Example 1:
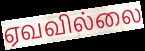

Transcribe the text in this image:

ஏவவில்லை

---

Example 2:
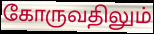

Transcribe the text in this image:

கோருவதிலும்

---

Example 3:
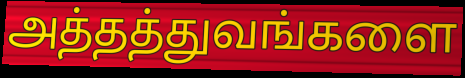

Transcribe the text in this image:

அத்தத்துவங்களை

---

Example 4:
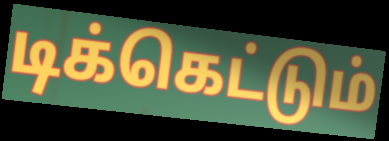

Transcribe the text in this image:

டிக்கெட்டும்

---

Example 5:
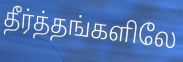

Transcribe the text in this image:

தீர்த்தங்களிலே